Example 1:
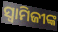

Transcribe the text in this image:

ସ୍ବାମିଜୀଙ୍କ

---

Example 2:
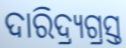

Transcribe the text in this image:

ଦାରିଦ୍ର୍ୟଗ୍ରସ୍ତ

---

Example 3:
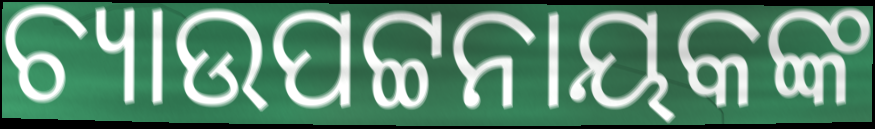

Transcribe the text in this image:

ଚ୍ୟାଉପଟ୍ଟନାୟକଙ୍କ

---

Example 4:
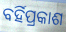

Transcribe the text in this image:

ବର୍ହିପ୍ରକାଶ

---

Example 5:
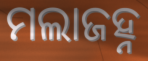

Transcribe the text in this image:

ମଲାଜହ୍ନ